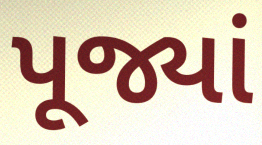
પૂજ્યાં